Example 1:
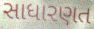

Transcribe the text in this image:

સાધારણત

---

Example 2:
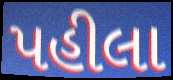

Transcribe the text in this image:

પહીલા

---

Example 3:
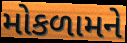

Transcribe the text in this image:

મોકળામને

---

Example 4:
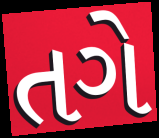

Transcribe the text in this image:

તગે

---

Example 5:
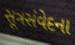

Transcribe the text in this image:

સૂત્રસંવેદના